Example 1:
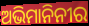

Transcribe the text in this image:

ଅଭିମାନିନୀର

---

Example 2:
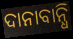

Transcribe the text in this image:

ଦାନାବାନ୍ଧି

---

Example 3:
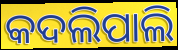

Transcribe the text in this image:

କଦଲିପାଲି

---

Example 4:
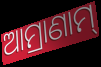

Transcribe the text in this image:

ଆମ୍ରାଣାମ୍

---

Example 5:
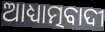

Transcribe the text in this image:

ଆଧ୍ୟାତ୍ମବାଦୀ